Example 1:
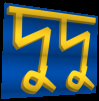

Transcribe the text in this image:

দুদু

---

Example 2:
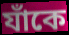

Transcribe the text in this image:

যাঁকে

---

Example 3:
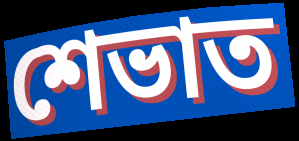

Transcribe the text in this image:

শেভাত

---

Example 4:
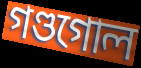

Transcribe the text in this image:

গণ্ডগোল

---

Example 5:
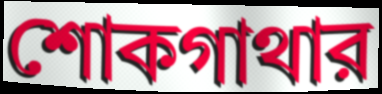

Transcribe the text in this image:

শোকগাথার